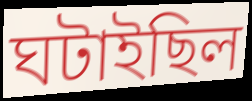
ঘটাইছিল